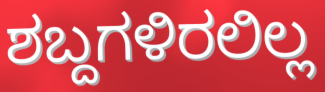
ಶಬ್ದಗಳಿರಲಿಲ್ಲ